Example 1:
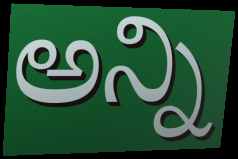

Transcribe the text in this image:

అన్ని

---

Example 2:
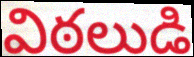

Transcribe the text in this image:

విఠలుడి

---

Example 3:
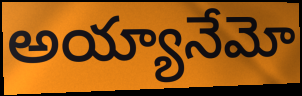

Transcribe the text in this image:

అయ్యానేమో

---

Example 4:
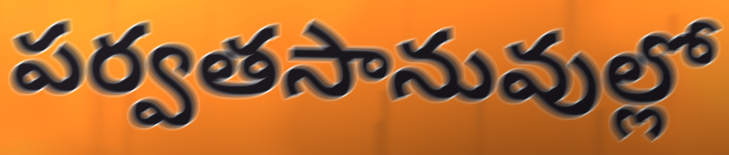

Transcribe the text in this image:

పర్వతసానువుల్లో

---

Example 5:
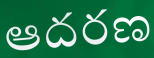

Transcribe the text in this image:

ఆదరణ